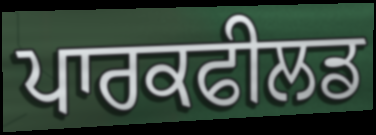
ਪਾਰਕਫੀਲਡ